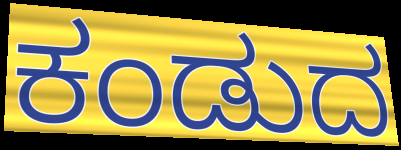
ಕಂಡುದ